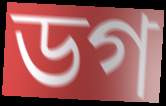
ডগ